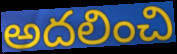
అదలించి